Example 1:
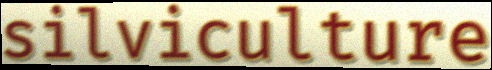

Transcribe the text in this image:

silviculture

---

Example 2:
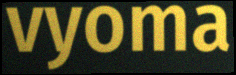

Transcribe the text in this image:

vyoma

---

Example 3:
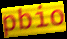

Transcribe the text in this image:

pbio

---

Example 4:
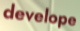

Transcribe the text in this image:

develope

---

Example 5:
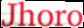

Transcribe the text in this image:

Jhoro